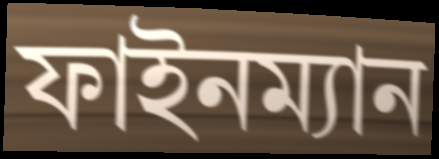
ফাইনম্যান